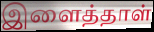
இளைத்தாள்